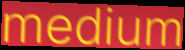
medium